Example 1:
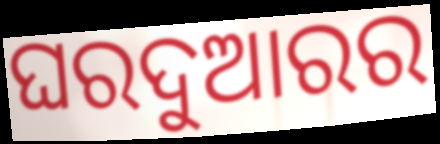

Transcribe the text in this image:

ଘରଦୁଆରର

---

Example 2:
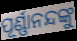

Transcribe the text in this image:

ପୂର୍ଣ୍ଣାନନ୍ଦଙ୍କୁ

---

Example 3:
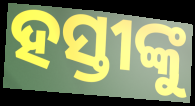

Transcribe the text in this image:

ହସ୍ତୀଙ୍କୁ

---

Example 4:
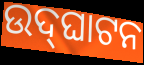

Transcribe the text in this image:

ଉଦ୍‍ଘାଟନ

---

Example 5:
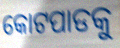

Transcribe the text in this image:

କୋଟପାଡକୁ